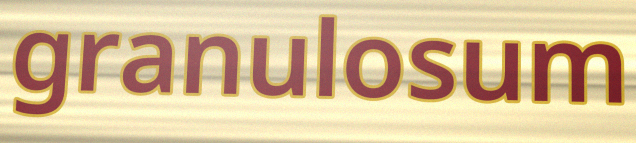
granulosum